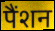
पैंशन